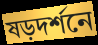
ষড়দর্শনে